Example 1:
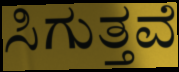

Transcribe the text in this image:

ಸಿಗುತ್ತವೆ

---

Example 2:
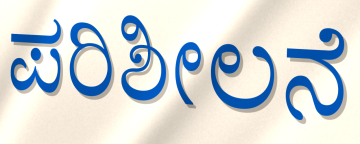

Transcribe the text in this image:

ಪರಿಶೀಲನೆ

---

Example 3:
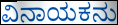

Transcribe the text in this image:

ವಿನಾಯಕನು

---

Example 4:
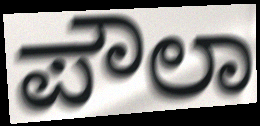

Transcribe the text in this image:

ಪೌಲಾ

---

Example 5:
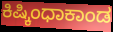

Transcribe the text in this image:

ಕಿಷ್ಕಿಂಧಾಕಾಂಡ